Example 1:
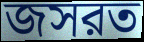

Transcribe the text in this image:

জসরত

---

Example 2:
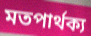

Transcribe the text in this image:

মতপার্থক্য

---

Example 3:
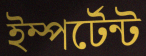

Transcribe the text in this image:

ইম্পর্টেন্ট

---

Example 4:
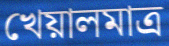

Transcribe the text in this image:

খেয়ালমাত্র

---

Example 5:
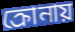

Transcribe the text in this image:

ক্রোনায়